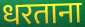
धरताना